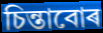
চিন্তাবোৰ